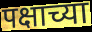
पक्षाच्या